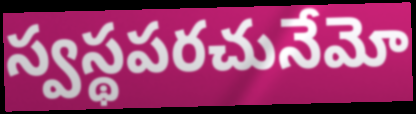
స్వస్థపరచునేమో